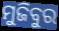
ମୁଜିବୁର